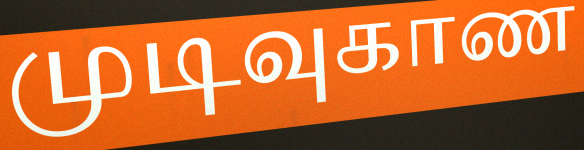
முடிவுகாண